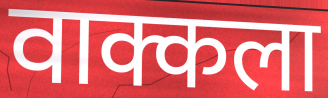
वाक्कला